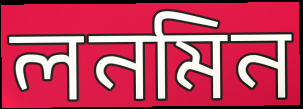
লনমিন